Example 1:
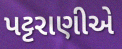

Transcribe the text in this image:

પટ્ટરાણીએ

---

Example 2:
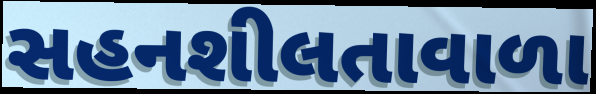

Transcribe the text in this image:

સહનશીલતાવાળા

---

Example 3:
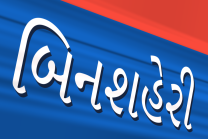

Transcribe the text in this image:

બિનશહેરી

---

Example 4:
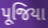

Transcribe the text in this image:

પૂજિયા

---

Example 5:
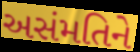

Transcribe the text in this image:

અસંમતિને